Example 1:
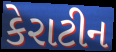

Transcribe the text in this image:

કેરાટીન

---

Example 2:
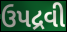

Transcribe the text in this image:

ઉપદ્રવી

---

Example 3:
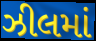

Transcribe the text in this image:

ઝીલમાં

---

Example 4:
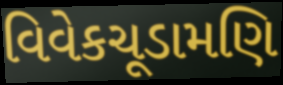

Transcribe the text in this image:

વિવેકચૂડામણિ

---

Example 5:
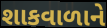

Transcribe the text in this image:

શાકવાળાને